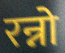
रन्नो